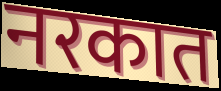
नरकात